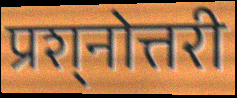
प्रश्नोत्तरी